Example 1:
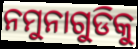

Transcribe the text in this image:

ନମୁନାଗୁଡିକୁ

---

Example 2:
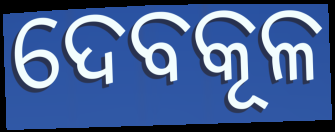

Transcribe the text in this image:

ଦେବକୂଳ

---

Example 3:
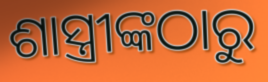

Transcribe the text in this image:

ଶାସ୍ତ୍ରୀଙ୍କଠାରୁ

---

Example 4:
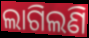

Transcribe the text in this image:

ଲାଗିଲଣି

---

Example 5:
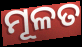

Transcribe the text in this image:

ମୂଳତ